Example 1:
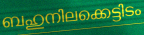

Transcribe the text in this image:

ബഹുനിലക്കെട്ടിടം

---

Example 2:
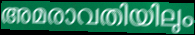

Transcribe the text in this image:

അമരാവതിയിലും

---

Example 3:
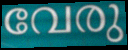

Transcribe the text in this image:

വേരു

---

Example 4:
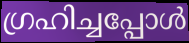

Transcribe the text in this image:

ഗ്രഹിച്ചപ്പോൾ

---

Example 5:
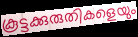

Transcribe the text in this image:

കൂട്ടക്കുരുതികളെയും